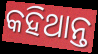
କହିଥାନ୍ତ